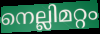
നെല്ലിമറ്റം